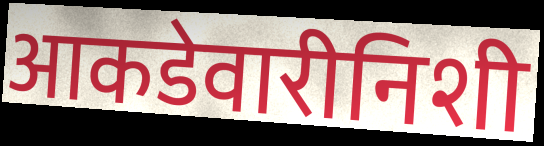
आकडेवारीनिशी